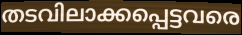
തടവിലാക്കപ്പെട്ടവരെ